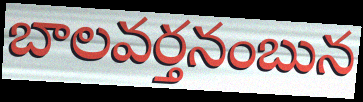
బాలవర్తనంబున